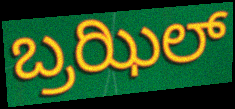
ಬ್ರಝಿಲ್